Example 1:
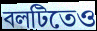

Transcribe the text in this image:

বলটিতেও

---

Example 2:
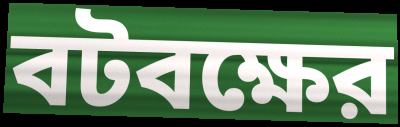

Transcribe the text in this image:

বটবক্ষের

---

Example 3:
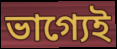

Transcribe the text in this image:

ভাগ্যেই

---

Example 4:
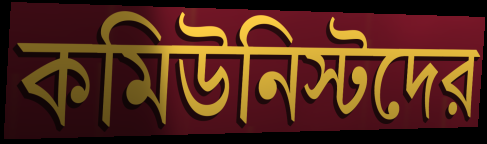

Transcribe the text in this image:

কমিউনিস্টদের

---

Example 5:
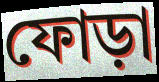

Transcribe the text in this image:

ফোড়া